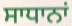
ਸਾਧਾਨਾਂ